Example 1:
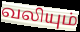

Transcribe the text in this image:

வலியும்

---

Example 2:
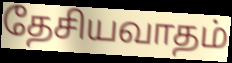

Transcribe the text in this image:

தேசியவாதம்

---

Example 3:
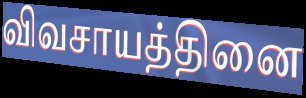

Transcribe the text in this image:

விவசாயத்தினை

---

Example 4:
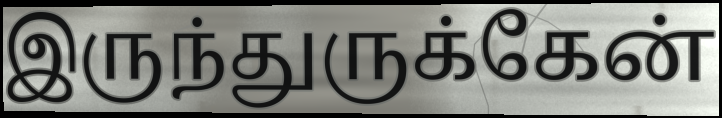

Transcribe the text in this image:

இருந்துருக்கேன்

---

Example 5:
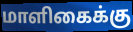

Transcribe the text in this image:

மாளிகைக்கு